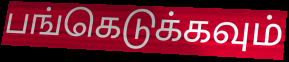
பங்கெடுக்கவும்